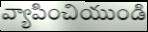
వ్యాపించియుండి